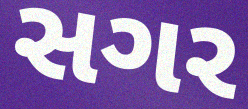
સગર